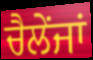
ਚੈਲੇਂਜਾਂ